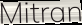
Mitran